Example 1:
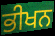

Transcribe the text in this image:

ਭੀਖਨ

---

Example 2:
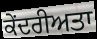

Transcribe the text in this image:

ਕੇਂਦਰੀਅਤਾ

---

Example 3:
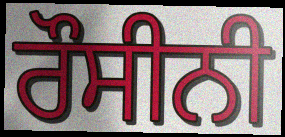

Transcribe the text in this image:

ਰੌਸੀਨੀ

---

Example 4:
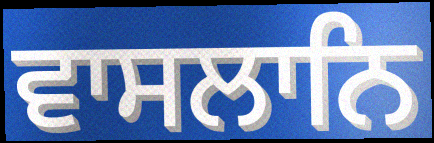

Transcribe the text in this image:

ਵਾਸਲਾਨਿ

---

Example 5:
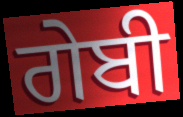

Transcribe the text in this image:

ਗੇਬੀ